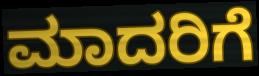
ಮಾದರಿಗೆ